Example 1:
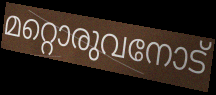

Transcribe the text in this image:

മറ്റൊരുവനോട്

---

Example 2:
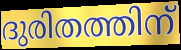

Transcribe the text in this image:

ദുരിതത്തിന്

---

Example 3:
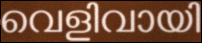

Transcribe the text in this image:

വെളിവായി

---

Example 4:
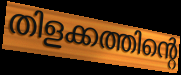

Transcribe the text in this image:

തിളക്കത്തിന്റെ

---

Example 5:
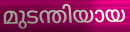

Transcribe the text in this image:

മുടന്തിയായ